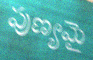
పుణ్యమై